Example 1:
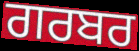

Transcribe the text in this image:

ਗਰਬਰ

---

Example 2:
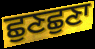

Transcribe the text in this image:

ਛੁਣਛੁਣਾ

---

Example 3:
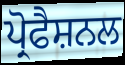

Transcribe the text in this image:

ਪ੍ਰੋਫੈਸ਼ਨਲ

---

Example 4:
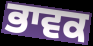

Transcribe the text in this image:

ਭਾਵਕ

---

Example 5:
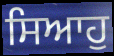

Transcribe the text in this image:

ਸਿਆਹੁ